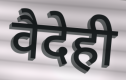
वैदेही